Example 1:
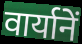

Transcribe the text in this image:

वार्यानें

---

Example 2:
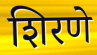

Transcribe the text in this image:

शिरणे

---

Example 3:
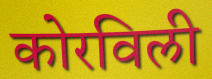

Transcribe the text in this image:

कोरविली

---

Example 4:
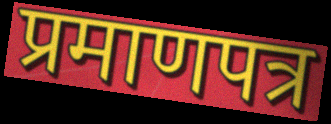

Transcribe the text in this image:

प्रमाणपत्र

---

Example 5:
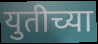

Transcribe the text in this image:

युतीच्या